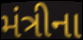
મંત્રીના